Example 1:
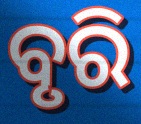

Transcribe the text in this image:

ବୃରି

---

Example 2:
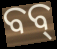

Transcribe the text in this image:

ବବ୍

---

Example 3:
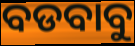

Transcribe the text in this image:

ବଡବାବୁ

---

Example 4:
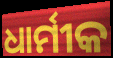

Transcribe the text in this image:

ଧାର୍ମୀକ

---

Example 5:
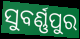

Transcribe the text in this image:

ସୁବର୍ଣ୍ଣପୁର